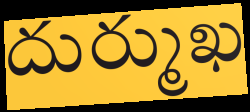
దుర్ముఖ